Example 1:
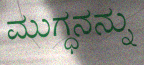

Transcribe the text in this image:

ಮುಗ್ಧನನ್ನು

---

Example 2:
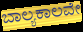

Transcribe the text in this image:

ಬಾಲ್ಯಕಾಲವೇ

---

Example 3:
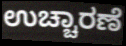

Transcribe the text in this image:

ಉಚ್ಚಾರಣೆ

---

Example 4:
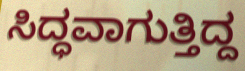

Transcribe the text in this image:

ಸಿದ್ಧವಾಗುತ್ತಿದ್ದ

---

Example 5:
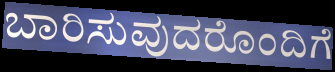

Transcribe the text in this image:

ಬಾರಿಸುವುದರೊಂದಿಗೆ